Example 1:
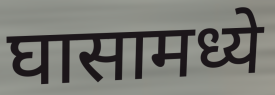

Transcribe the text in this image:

घासामध्ये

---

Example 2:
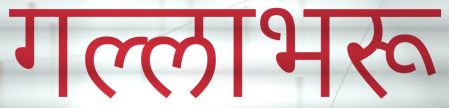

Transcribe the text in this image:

गल्लाभरू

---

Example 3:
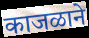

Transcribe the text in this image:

काजळाने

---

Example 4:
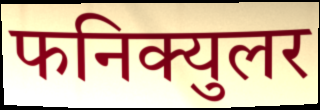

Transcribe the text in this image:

फनिक्युलर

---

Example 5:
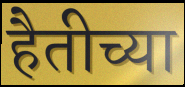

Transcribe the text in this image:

हैतीच्या